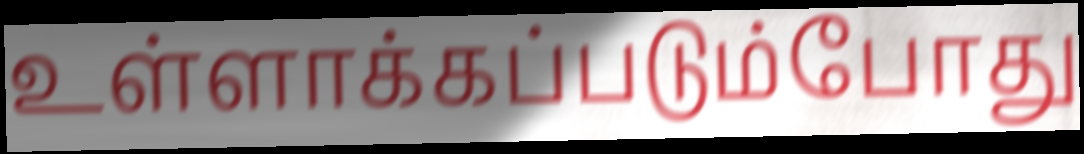
உள்ளாக்கப்படும்போது